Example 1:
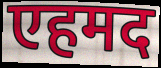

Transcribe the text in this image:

एहमद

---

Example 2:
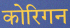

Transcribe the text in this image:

कोरिगन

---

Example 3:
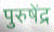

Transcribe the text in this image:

पुरुषेंद्र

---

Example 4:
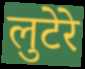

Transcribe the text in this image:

लुटेरे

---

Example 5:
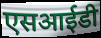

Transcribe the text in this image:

एसआईडी